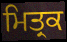
ਮਿਤ੍ਰਕ